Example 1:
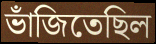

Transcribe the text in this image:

ভাঁজিতেছিল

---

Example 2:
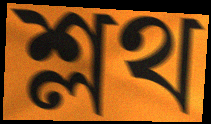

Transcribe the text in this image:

শ্লথ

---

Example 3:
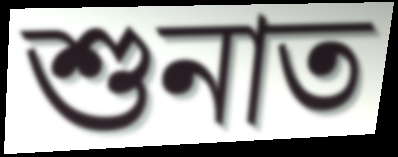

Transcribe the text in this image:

শুনাত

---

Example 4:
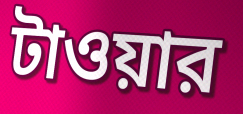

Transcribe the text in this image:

টাওয়ার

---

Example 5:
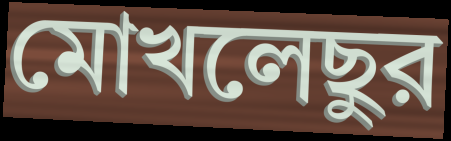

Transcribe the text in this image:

মোখলেছুর